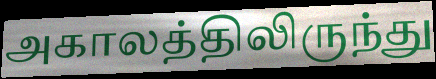
அகாலத்திலிருந்து